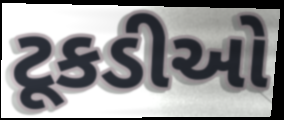
ટૂકડીઓ